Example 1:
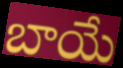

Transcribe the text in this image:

బాయే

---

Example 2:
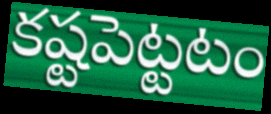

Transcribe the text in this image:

కష్టపెట్టటం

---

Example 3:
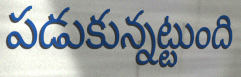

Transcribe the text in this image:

పడుకున్నట్టుంది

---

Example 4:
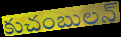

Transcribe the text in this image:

కుచంబులన్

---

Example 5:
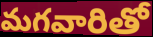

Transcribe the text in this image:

మగవారితో